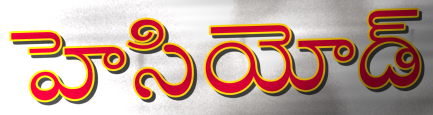
హెసియోడ్